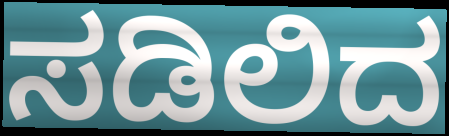
ಸಡಿಲಿದ